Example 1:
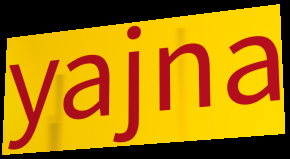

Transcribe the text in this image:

yajna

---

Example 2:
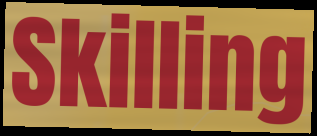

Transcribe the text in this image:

Skilling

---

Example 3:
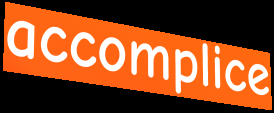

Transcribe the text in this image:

accomplice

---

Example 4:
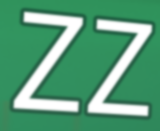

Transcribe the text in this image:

ZZ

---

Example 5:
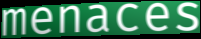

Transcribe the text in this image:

menaces